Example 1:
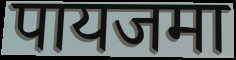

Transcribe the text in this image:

पायजमा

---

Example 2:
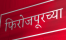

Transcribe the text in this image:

फिरोजपूरच्या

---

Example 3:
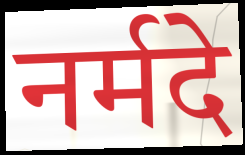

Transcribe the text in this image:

नर्मदे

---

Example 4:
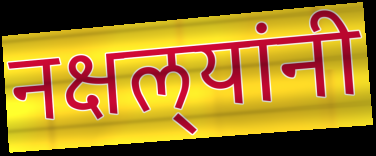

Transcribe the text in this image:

नक्षल्यांनी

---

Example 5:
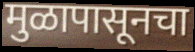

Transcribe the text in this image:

मुळापासूनचा